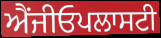
ਐਂਜੀਓਪਲਾਸਟੀ